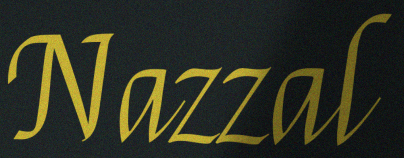
Nazzal